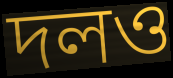
দলও